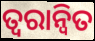
ତ୍ୱରାନ୍ଵିତ